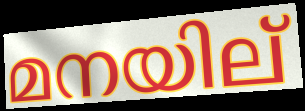
മനയില്